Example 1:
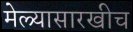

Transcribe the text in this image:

मेल्यासारखीच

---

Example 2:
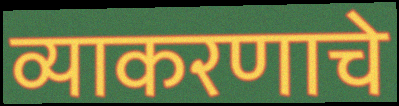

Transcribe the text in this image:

व्याकरणाचे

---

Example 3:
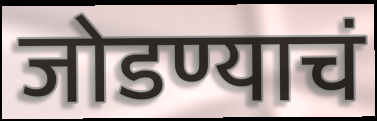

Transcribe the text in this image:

जोडण्याचं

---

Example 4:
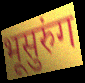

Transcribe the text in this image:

भूसुरुंग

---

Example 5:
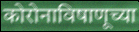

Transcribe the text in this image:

कोरोनाविषाणूच्या